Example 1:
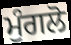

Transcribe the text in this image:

ਮੁੰਗਲੋ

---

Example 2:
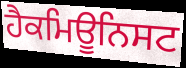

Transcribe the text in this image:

ਹੈਕਮਿਊਨਿਸਟ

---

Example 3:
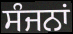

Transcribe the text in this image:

ਸੰਜਨਾਂ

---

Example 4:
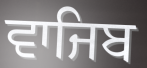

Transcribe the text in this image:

ਵਾਜਿਬ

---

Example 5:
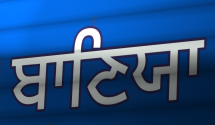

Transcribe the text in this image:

ਬਾਣਿਯਾ